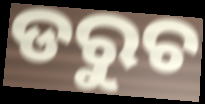
ଡରୁଚ